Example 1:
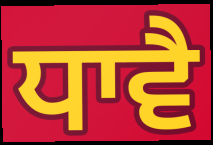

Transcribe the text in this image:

ਧਾਵੈ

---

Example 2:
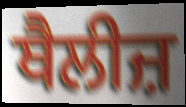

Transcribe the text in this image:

ਥੈਲੀਜ਼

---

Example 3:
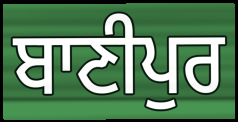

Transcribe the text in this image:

ਬਾਣੀਪੁਰ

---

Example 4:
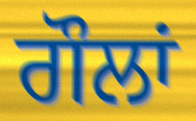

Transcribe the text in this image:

ਗੌਲਾਂ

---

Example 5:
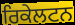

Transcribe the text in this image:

ਰਿਕੇਲਟਨ